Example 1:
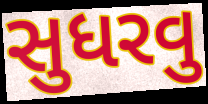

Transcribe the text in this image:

સુધરવુ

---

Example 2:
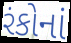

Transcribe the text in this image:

રંકોનાં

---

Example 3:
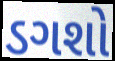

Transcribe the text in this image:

ડગશો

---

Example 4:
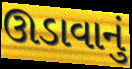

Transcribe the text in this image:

ઊડાવાનું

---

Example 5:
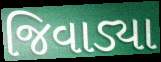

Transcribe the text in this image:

જિવાડ્યા